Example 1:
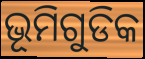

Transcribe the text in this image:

ଭୂମିଗୁଡିକ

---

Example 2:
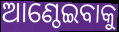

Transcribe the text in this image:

ଆଣ୍ଠେଇବାକୁ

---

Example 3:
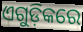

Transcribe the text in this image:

ଏଗୁଡ଼ିକରେ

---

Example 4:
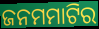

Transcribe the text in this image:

ଜନମମାଟିର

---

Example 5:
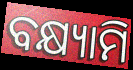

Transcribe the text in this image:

ବକ୍ଷ୍ୟାମି